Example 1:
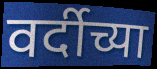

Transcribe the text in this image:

वर्दीच्या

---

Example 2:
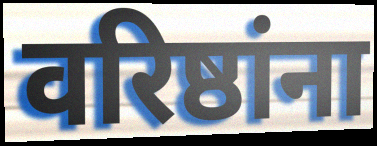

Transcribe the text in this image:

वरिष्ठांना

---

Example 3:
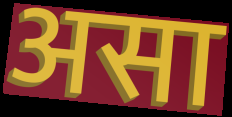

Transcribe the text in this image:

असा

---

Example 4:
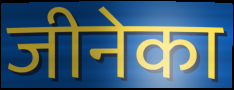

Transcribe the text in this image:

जीनेका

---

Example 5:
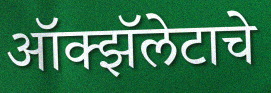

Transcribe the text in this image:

ऑक्झॅलेटाचे